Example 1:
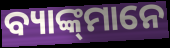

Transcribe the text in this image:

ବ୍ୟାଙ୍କ୍‌ମାନେ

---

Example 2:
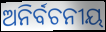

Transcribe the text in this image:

ଅନିର୍ବଚନୀୟ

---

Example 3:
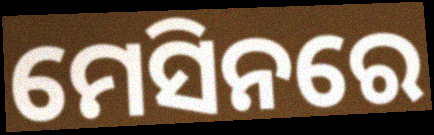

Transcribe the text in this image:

ମେସିନରେ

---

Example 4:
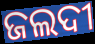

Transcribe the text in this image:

ଜଲଦୀ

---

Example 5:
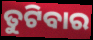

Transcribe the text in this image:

ତୁଟିବାର